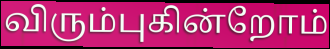
விரும்புகின்றோம்